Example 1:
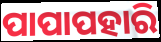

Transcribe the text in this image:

ପାପାପହାରି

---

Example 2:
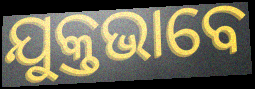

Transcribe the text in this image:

ଯୁକ୍ତଭାବେ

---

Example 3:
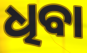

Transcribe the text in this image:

ଧିବା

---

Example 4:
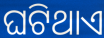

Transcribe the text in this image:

ଘଟିଥାଏ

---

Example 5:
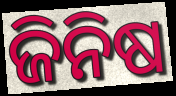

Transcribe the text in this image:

ଜିନିଷ